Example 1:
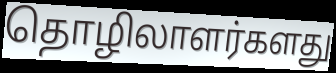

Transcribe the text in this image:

தொழிலாளர்களது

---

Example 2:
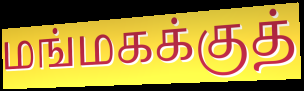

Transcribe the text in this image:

மங்மகக்குத்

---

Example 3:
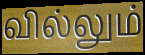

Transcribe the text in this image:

வில்லும்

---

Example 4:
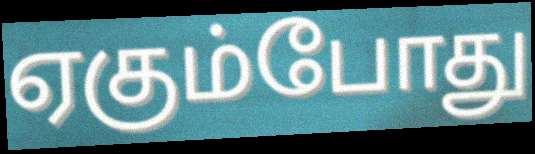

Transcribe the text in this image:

ஏகும்போது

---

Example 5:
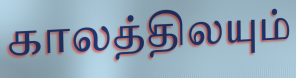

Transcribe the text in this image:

காலத்திலயும்